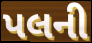
પલની